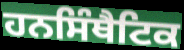
ਹਨਸਿੰਥੈਟਿਕ